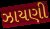
ઝાયણી